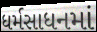
ધર્મસાધનમાં